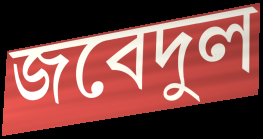
জবেদুল